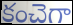
కంచెగా